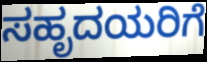
ಸಹೃದಯರಿಗೆ